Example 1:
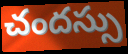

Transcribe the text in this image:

చందస్సు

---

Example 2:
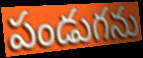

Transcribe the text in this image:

పండుగను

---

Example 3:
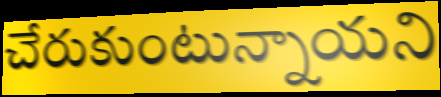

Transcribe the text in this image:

చేరుకుంటున్నాయని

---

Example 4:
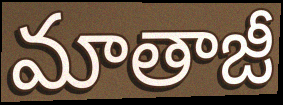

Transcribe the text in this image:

మాతాజీ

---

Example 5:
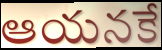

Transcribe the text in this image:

ఆయనకే